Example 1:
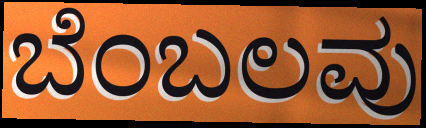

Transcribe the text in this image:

ಬೆಂಬಲವು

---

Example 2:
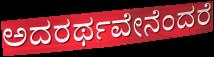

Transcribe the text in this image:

ಅದರರ್ಥವೇನೆಂದರೆ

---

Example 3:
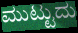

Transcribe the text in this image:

ಮುಟ್ಟುದು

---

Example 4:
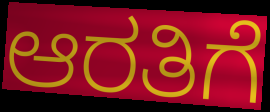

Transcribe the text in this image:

ಆರತಿಗೆ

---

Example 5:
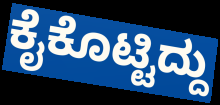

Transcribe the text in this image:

ಕೈಕೊಟ್ಟಿದ್ದು